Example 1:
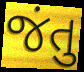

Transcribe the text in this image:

જંતુ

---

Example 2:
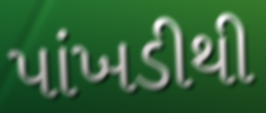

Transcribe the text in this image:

પાંખડીથી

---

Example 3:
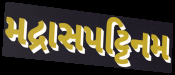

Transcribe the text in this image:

મદ્રાસપટ્ટિનમ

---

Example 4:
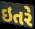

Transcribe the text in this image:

ઇતરે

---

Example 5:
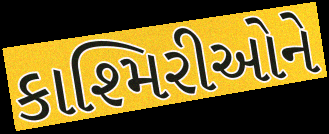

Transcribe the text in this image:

કાશ્મિરીઓને